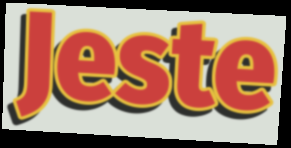
Jeste